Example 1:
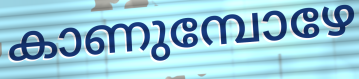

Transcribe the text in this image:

കാണുമ്പോഴേ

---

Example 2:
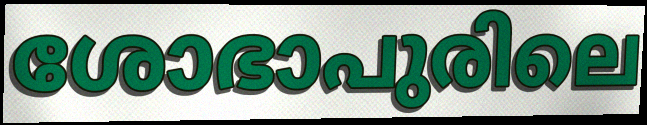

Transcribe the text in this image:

ശോഭാപുരിലെ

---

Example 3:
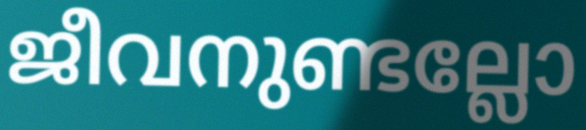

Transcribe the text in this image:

ജീവനുണ്ടല്ലോ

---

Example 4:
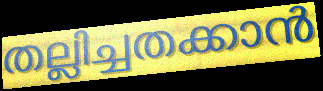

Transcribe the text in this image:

തല്ലിച്ചതക്കാൻ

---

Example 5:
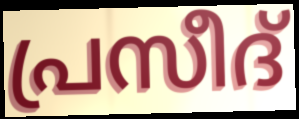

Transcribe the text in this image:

പ്രസീദ്